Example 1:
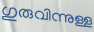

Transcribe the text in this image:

ഗുരുവിന്നുള്ള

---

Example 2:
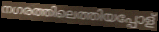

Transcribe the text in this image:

നഗരത്തിലെത്തിയപ്പോള്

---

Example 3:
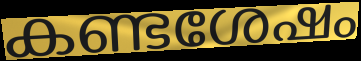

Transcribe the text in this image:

കണ്ടശേഷം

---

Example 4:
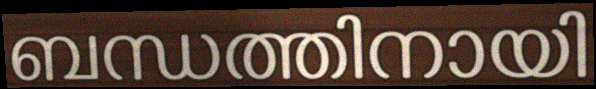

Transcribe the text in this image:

ബന്ധത്തിനായി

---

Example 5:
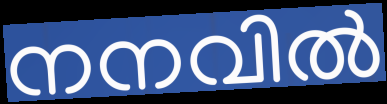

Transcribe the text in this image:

നനവിൽ